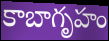
కాబాగృహం